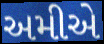
અમીએ